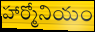
హార్మోనియం